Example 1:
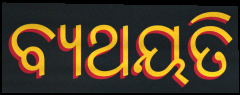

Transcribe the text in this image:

ବ୍ୟଥୟତି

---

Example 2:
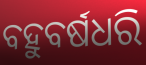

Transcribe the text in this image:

ବହୁବର୍ଷଧରି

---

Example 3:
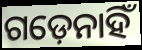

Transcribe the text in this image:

ଗଡ଼େନାହିଁ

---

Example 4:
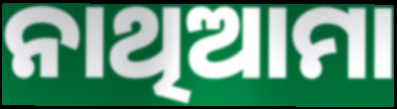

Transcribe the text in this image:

ନାଥିଆମା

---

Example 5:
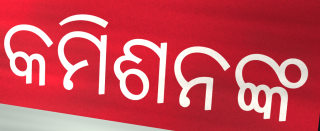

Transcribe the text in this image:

କମିଶନଙ୍କ